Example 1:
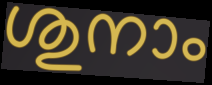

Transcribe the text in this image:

ശുനാം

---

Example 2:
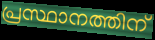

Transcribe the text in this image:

പ്രസ്ഥാനത്തിന്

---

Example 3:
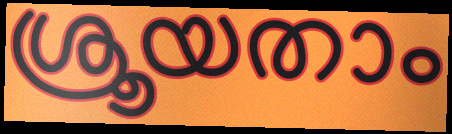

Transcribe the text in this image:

ശ്രൂയതാം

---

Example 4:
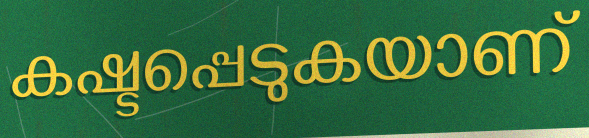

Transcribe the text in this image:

കഷ്ടപ്പെടുകയാണ്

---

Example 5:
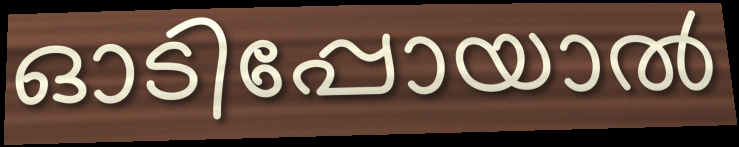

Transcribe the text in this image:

ഓടിപ്പോയാൽ